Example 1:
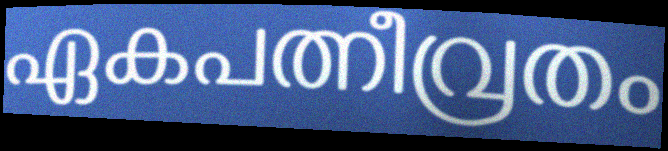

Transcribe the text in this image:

ഏകപത്നീവ്രതം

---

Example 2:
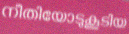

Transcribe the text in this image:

നീതിയോടുകൂടിയ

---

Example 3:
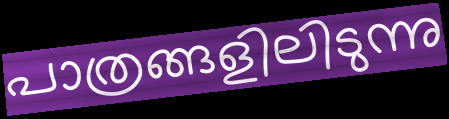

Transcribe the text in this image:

പാത്രങ്ങളിലിടുന്നു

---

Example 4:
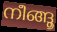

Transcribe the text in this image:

നീങ്ങൂ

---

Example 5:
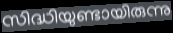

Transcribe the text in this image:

സിദ്ധിയുണ്ടായിരുന്നു